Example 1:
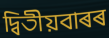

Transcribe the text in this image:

দ্বিতীয়বাৰৰ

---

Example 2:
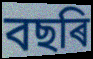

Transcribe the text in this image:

বছৰি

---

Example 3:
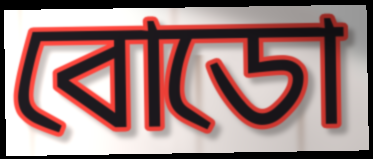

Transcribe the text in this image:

বোডো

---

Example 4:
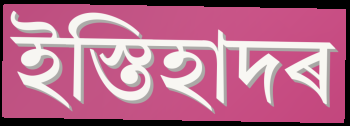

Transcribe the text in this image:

ইস্তিহাদৰ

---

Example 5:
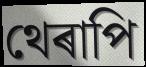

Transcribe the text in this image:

থেৰাপি